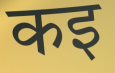
कइ